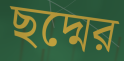
ছদ্মের